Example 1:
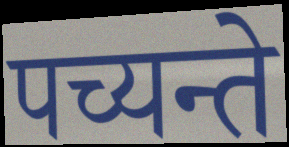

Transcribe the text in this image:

पच्यन्ते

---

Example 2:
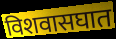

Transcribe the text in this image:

विशवासघात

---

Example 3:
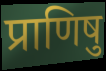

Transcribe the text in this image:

प्राणिषु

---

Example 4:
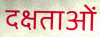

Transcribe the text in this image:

दक्षताओं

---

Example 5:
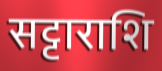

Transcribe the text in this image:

सट्टाराशि